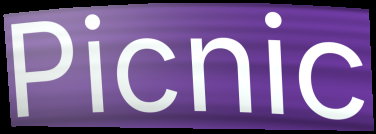
Picnic